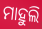
ମାହୁଲି